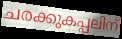
ചരക്കുകപ്പലിന്